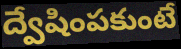
ద్వేషింపకుంటే